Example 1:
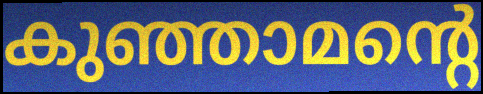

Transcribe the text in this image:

കുഞ്ഞാമന്റെ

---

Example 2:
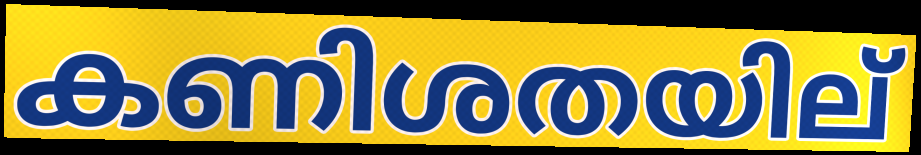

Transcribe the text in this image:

കണിശതയില്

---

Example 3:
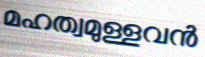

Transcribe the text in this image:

മഹത്വമുള്ളവൻ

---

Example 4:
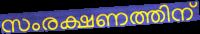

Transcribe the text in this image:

സംരക്ഷണത്തിന്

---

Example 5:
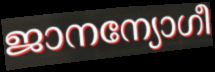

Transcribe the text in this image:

ജാനന്യോഗീ